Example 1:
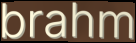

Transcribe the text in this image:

brahm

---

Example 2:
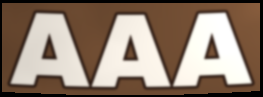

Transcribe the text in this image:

AAA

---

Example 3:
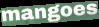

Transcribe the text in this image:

mangoes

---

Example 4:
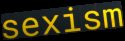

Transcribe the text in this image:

sexism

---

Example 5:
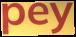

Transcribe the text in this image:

pey